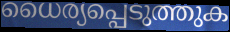
ധൈര്യപ്പെടുത്തുക